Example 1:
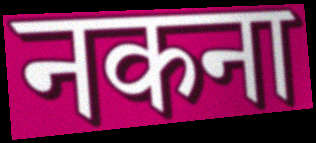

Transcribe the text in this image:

नकना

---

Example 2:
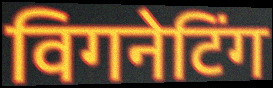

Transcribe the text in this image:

विगनेटिंग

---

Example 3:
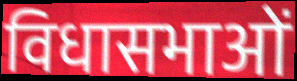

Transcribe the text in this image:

विधासभाओं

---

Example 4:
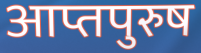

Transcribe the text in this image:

आप्तपुरुष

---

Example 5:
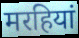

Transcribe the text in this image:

मरहियां